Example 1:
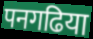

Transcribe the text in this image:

पनगढिया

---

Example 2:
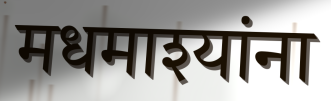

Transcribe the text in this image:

मधमाश्यांना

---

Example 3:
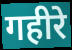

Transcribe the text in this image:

गहीरे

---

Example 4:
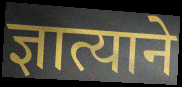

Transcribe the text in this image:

ज्ञात्याने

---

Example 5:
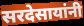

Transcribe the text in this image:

सरदेसायांनी